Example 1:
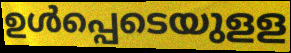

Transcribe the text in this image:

ഉൾപ്പെടെയുളള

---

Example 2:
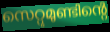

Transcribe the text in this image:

സെറ്റുമുണ്ടിന്റെ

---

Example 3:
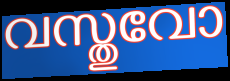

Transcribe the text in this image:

വസ്തുവോ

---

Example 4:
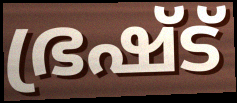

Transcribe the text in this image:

ഭ്രഷ്ട്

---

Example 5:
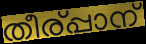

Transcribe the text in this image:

തീര്പ്പാന്